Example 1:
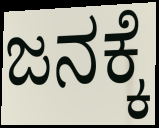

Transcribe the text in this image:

ಜನಕ್ಕೆ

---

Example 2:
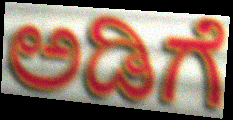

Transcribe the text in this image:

ಅಡಿಗೆ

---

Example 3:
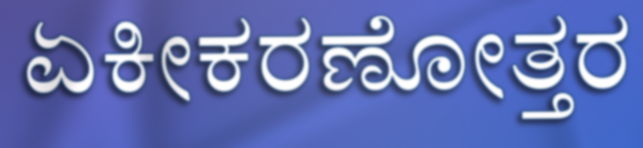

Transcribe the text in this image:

ಏಕೀಕರಣೋತ್ತರ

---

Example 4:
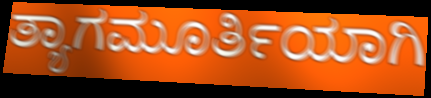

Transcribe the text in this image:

ತ್ಯಾಗಮೂರ್ತಿಯಾಗಿ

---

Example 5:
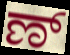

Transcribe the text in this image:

ಣ್